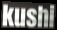
kushi